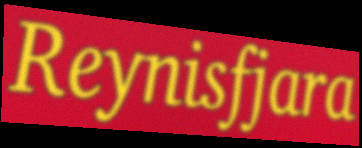
Reynisfjara